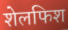
शेलफिश